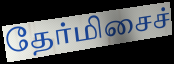
தேர்மிசைச்